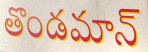
తొండమాన్